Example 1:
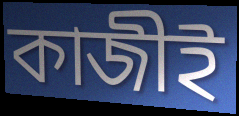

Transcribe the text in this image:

কাজীই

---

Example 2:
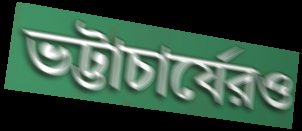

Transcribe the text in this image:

ভট্টাচার্যেরও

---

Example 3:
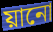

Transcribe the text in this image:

য়ানো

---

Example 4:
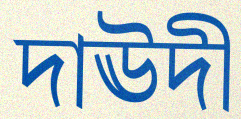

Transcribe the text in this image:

দাঊদী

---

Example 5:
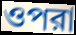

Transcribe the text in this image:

ওপরা